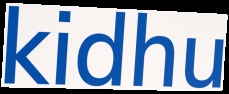
kidhu